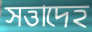
সত্তাদেহ